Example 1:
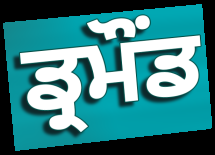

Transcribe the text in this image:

ਡ੍ਰਮੌਂਡ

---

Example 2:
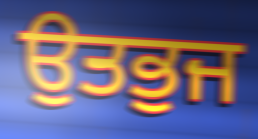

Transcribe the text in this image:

ਉਤਭੁਜ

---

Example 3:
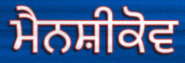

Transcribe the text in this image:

ਮੈਨਸ਼ੀਕੋਵ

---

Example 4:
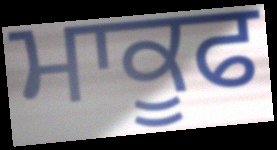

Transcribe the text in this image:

ਮਾਕੂਫ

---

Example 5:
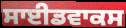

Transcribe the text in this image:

ਸਾਈਡਵਾਕਸ